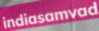
indiasamvad